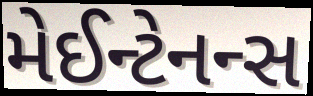
મેઈન્ટેનન્સ